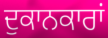
ਦੁਕਾਨਕਾਰਾਂ